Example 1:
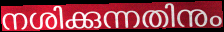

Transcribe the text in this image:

നശിക്കുന്നതിനും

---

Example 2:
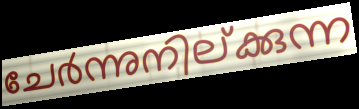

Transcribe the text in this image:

ചേർന്നുനില്ക്കുന്ന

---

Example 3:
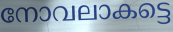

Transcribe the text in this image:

നോവലാകട്ടെ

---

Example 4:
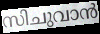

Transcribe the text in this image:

സിചുവാൻ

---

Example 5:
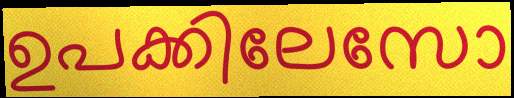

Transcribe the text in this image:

ഉപക്കിലേസോ